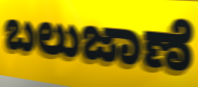
ಬಲುಜಾಣೆ